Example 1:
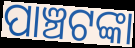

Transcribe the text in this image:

ପାଞ୍ଚଟଙ୍କା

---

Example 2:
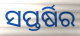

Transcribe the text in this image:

ସପ୍ତର୍ଷିର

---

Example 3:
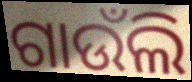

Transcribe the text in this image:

ଗାଉଁଲି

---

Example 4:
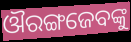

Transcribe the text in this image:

ଔରଙ୍ଗଜେବଙ୍କୁ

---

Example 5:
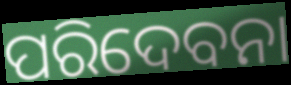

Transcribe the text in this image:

ପରିଦେବନା